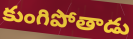
కుంగిపోతాడు